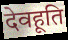
देवहूति